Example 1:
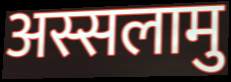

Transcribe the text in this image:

अस्सलामु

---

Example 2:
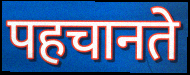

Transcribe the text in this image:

पहचानते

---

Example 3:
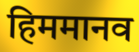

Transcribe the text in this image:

हिममानव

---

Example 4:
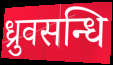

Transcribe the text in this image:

ध्रुवसन्धि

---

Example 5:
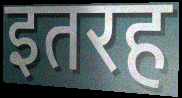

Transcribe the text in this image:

इतरह